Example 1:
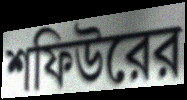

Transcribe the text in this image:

শফিউরের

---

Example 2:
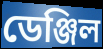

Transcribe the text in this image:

ডেঞ্জিল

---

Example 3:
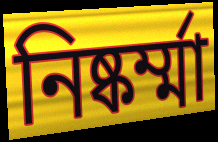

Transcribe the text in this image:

নিষ্কর্ম্মা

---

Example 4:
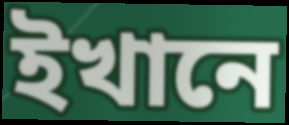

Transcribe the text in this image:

ইখানে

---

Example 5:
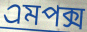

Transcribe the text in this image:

এমপক্স